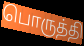
பொருத்தி